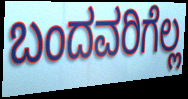
ಬಂದವರಿಗೆಲ್ಲ